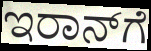
ಇರಾನ್‌ಗೆ